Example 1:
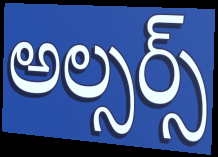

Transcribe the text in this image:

అల్సర్స్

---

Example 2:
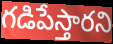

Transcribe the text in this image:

గడిపేస్తారని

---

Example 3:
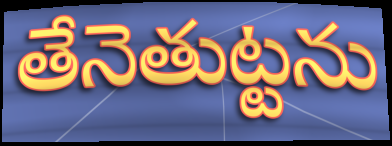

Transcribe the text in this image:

తేనెతుట్టను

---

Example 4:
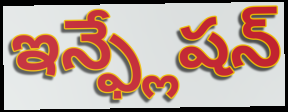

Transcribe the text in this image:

ఇన్ఫ్లేషన్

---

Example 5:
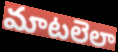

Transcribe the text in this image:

మాటలెలా